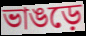
ভাঙড়ে